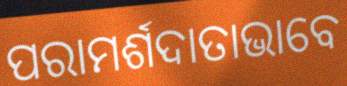
ପରାମର୍ଶଦାତାଭାବେ